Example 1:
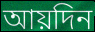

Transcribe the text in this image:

আয়দিন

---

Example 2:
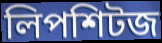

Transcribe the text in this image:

লিপশিটজ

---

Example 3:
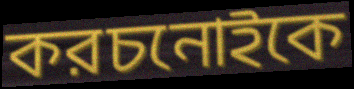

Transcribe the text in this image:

করচনোইকে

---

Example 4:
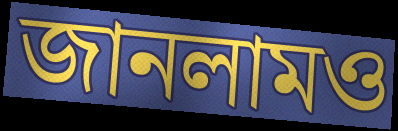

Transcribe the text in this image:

জানলামও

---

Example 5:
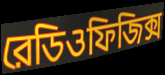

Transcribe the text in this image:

রেডিওফিজিক্স